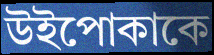
উইপোকাকে